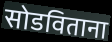
सोडविताना